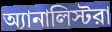
অ্যানালিস্টরা